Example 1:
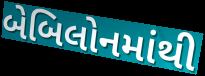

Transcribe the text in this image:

બેબિલોનમાંથી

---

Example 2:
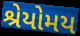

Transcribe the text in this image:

શ્રેયોમય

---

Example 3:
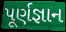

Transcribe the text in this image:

પૂર્ણજ્ઞાન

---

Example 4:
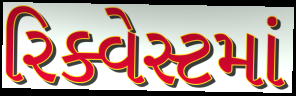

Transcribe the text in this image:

રિક્વેસ્ટમાં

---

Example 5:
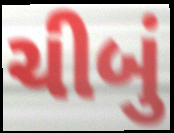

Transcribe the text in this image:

ચીબું